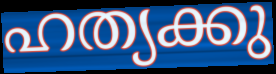
ഹത്യക്കു